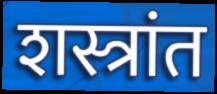
शस्त्रांत